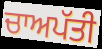
ਚਾਅਪੱਤੀ